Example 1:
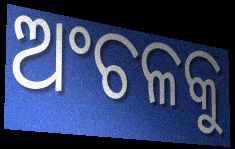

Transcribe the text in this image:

ଅଂଚଳକୁ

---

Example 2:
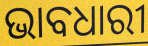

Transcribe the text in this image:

ଭାବଧାରୀ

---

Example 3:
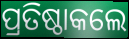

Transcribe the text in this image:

ପ୍ରତିଷ୍ଠାକଲେ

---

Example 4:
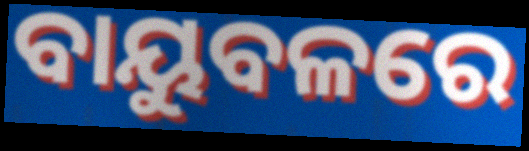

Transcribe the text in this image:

ବାୟୁବଳରେ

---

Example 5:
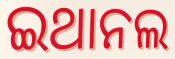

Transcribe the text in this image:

ଇଥାନଲ